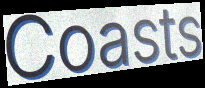
Coasts